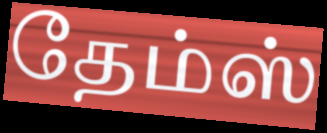
தேம்ஸ்